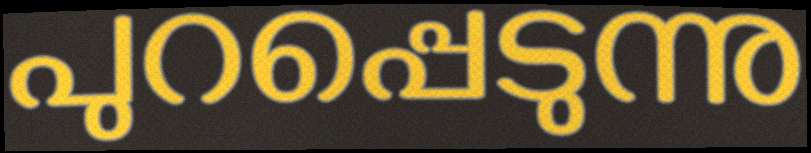
പുറപ്പെടുന്നു